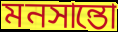
মনসান্তো